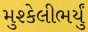
મુશ્કેલીભર્યું